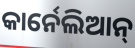
କାର୍ନେଲିଆନ୍